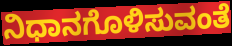
ನಿಧಾನಗೊಳಿಸುವಂತೆ